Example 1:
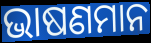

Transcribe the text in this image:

ଭାଷଣମାନ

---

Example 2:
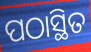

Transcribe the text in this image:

ପଠାସ୍ଥିତ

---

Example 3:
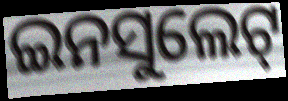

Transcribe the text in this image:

ଇନସୁଲେଟ୍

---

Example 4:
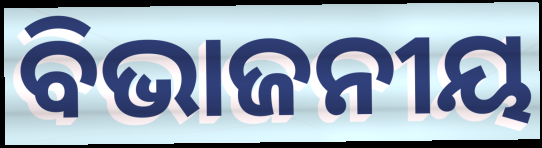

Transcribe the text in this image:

ବିଭାଜନୀୟ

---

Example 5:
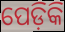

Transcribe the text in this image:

ପେଡ଼ିକି